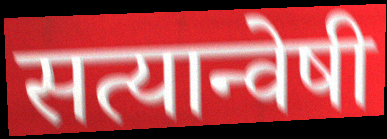
सत्यान्वेषी